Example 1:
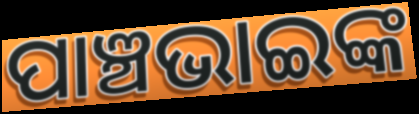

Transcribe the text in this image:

ପାଞ୍ଚଭାଇଙ୍କ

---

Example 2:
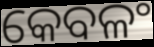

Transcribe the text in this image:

କେବଳଂ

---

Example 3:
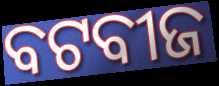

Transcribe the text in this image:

ବଟବୀଜ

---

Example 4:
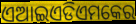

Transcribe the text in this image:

ଏଆଇଏଡିଏମକେର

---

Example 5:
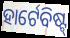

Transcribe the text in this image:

ହାର୍ଟେବିଷ୍ଟ୍